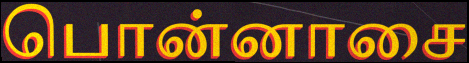
பொன்னாசை